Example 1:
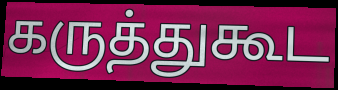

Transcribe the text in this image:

கருத்துகூட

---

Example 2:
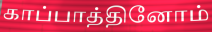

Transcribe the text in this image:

காப்பாத்தினோம்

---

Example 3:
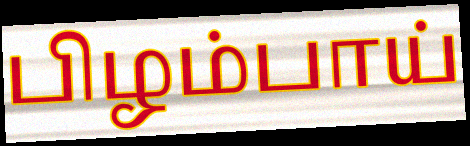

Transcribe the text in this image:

பிழம்பாய்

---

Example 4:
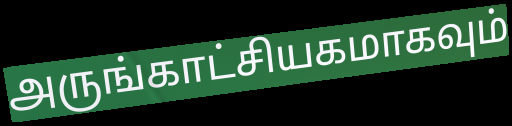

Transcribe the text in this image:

அருங்காட்சியகமாகவும்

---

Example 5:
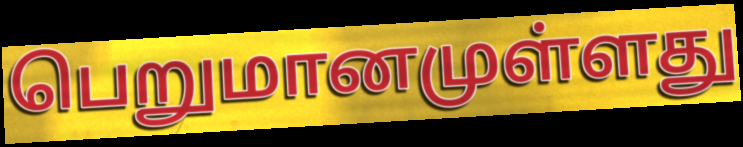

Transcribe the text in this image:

பெறுமானமுள்ளது